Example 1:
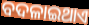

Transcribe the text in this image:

ବଦଳାଇଥାଏ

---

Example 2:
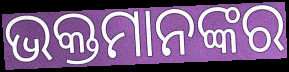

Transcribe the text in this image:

ଭକ୍ତମାନଙ୍କର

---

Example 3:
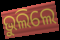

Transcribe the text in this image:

ଭୁଲିଲେ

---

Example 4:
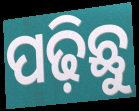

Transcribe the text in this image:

ପଢ଼ିଛୁ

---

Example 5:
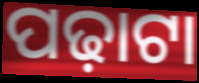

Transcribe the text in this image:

ପଢ଼ାଟା